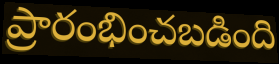
ప్రారంభించబడింది